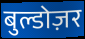
बुल्डोज़र